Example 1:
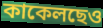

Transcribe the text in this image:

কাকেলছেও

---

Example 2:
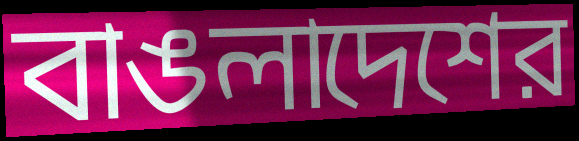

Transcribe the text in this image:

বাঙলাদেশের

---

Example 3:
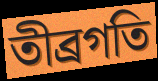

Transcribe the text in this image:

তীব্রগতি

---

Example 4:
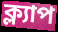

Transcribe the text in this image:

ক্ল্যাপ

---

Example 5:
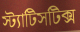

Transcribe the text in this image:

স্ট্যাটিসটিক্স